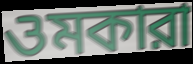
ওমকারা